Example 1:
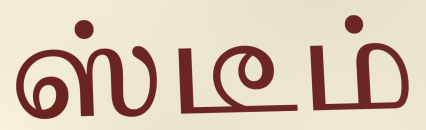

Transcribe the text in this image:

ஸ்டீம்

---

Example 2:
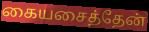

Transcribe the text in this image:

கையசைத்தேன்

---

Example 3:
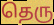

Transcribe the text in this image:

தெரு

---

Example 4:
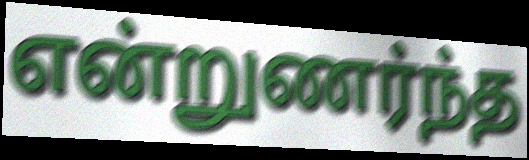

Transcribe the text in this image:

என்றுணர்ந்த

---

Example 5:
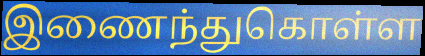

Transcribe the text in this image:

இணைந்துகொள்ள